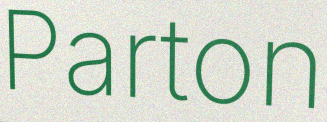
Parton